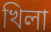
খিলা